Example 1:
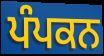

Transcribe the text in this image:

ਪੰਪਕਨ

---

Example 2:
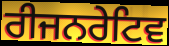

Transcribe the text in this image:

ਰੀਜਨਰੇਟਿਵ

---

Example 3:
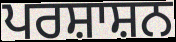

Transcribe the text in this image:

ਪਰਸ਼ਾਸ਼ਨ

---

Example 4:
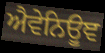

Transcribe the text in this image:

ਐਵੇਨਿਊਞ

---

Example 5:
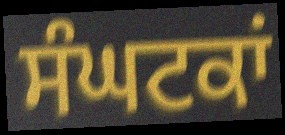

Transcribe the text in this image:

ਸੰਘਟਕਾਂ